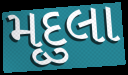
મૃદુલા